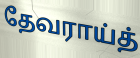
தேவராய்த்